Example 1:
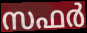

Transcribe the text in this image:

സഫർ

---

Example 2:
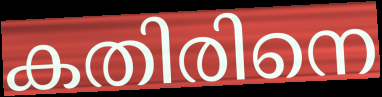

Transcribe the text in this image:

കതിരിനെ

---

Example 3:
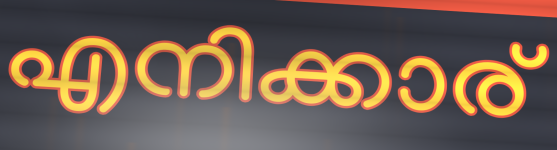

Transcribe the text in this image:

എനിക്കാര്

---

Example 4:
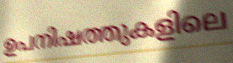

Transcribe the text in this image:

ഉപനിഷത്തുകളിലെ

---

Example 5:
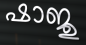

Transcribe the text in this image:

ഷാജു